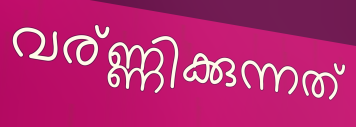
വര്ണ്ണിക്കുന്നത്